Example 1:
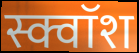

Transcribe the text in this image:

स्क्वॉश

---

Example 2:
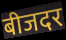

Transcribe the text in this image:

बीजदर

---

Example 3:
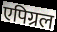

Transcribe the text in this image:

एपिग्रल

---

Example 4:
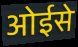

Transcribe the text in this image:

ओईसे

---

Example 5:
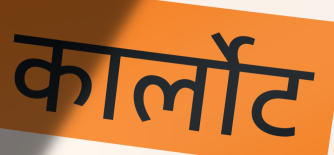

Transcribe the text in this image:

कार्लोट